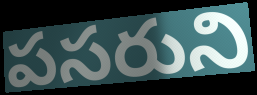
పసరుని